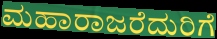
ಮಹಾರಾಜರೆದುರಿಗೆ